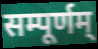
सम्पूर्णम्